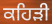
ਕਹਿੜੀ